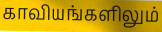
காவியங்களிலும்